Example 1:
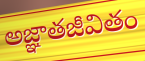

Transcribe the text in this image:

అజ్ఞాతజీవితం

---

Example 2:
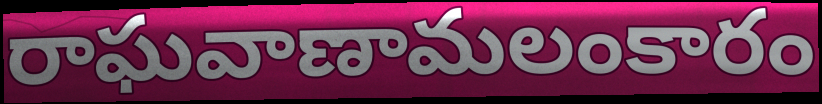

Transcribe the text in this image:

రాఘవాణామలంకారం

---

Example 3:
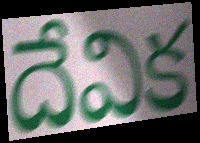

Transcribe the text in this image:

దేవిక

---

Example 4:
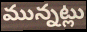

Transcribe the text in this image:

మున్నట్లు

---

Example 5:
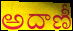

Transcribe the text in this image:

అదాణీ